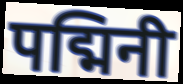
पद्मिनी